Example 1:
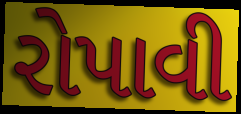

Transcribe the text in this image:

રોપાવી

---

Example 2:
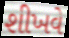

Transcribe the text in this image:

શીખવે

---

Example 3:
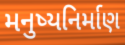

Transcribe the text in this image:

મનુષ્યનિર્માણ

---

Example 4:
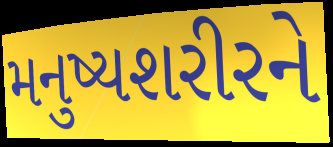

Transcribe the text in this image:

મનુષ્યશરીરને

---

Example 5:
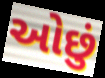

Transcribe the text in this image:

ઓછું